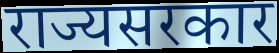
राज्यसरकार